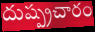
దుష్ప్రచారం